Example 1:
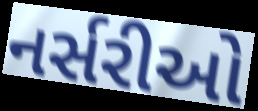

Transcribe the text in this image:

નર્સરીઓ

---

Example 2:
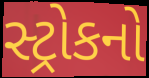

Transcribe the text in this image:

સ્ટ્રોકનો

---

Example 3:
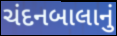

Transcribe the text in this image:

ચંદનબાલાનું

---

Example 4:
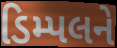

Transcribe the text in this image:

ડિમ્પલને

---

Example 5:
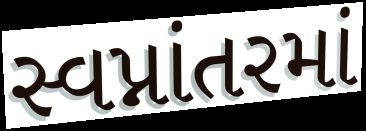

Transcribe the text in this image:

સ્વપ્નાંતરમાં